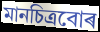
মানচিত্ৰবোৰ